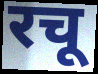
रचू